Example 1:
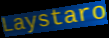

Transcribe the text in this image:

Laystaro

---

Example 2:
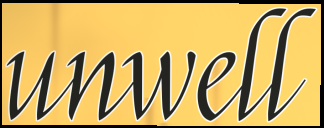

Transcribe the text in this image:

unwell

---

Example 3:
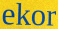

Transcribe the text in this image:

ekor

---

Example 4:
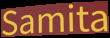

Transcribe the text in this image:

Samita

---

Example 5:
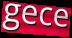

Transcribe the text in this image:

gece